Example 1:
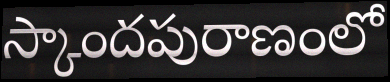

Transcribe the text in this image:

స్కాందపురాణంలో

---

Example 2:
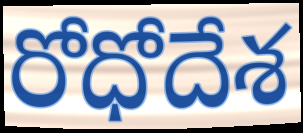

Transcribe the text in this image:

రోధోదేశ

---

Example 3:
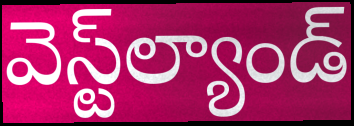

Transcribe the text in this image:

వెస్ట్‌ల్యాండ్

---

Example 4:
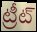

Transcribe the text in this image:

ట్రీట్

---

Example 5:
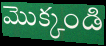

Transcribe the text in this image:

మొక్కండి